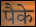
पैके